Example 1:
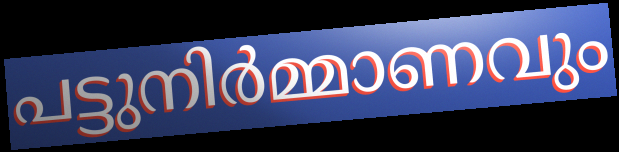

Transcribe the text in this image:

പട്ടുനിർമ്മാണവും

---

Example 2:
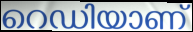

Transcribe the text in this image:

റെഡിയാണ്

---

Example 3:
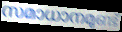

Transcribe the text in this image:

സമാധാനമുണ്ട്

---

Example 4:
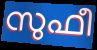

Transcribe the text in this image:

സുഫീ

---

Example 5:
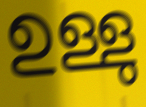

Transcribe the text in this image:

ഉള്ളു